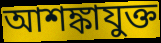
আশঙ্কাযুক্ত